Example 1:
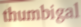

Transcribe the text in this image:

thumbigal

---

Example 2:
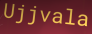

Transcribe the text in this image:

Ujjvala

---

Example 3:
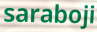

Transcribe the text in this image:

saraboji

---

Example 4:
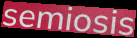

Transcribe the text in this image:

semiosis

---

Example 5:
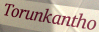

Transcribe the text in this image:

Torunkantho